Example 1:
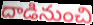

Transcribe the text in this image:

దాడినుంచి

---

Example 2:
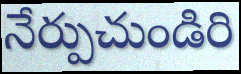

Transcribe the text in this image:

నేర్పుచుండిరి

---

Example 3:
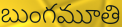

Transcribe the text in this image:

బుంగమూతి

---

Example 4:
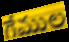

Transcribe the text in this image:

గేముల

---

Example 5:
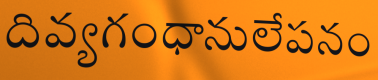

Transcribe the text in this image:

దివ్యగంధానులేపనం